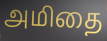
அமிதை